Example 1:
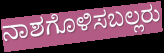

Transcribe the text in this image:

ನಾಶಗೊಳಿಸಬಲ್ಲರು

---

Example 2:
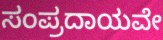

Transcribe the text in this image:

ಸಂಪ್ರದಾಯವೇ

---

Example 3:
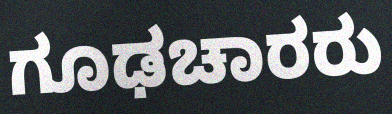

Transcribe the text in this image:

ಗೂಢಚಾರರು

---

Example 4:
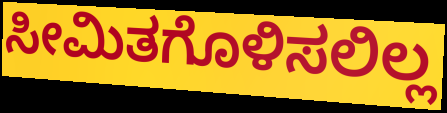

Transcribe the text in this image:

ಸೀಮಿತಗೊಳಿಸಲಿಲ್ಲ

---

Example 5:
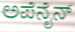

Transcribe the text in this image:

ಅಪೆನೈನ್